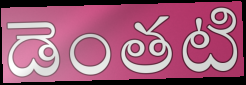
డెంతటి